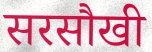
सरसौखी